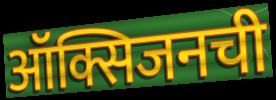
ऑक्सिजनची